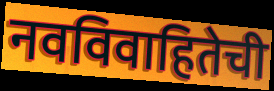
नवविवाहितेची